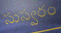
సుస్వరం